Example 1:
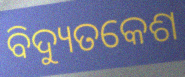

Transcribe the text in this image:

ବିଦ୍ୟୁତକେଶ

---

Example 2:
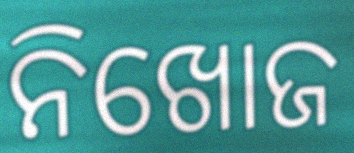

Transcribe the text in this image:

ନିଖୋଜ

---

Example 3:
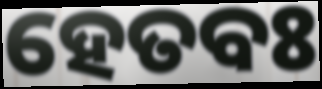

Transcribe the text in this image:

ହେତବଃ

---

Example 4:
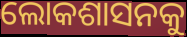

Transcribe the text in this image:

ଲୋକଶାସନକୁ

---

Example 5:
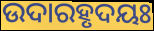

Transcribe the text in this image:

ଉଦାରହୃଦୟଃ